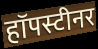
हॉपस्टीनर